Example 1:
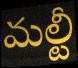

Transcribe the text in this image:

మల్టీ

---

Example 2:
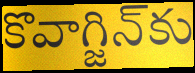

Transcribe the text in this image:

కొవాగ్జిన్‌కు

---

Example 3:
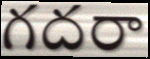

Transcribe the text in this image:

గదరా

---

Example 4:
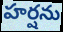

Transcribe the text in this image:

హర్షను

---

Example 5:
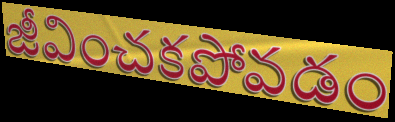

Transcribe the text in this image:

జీవించకపోవడం